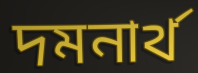
দমনার্থ